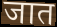
जात